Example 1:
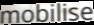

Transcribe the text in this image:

mobilise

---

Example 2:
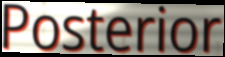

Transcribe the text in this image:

Posterior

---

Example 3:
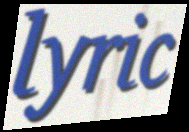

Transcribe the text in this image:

lyric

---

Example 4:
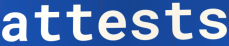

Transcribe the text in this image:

attests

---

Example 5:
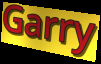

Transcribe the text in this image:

Garry